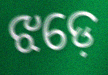
ଝଡ଼େ